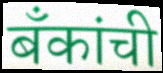
बँकांची